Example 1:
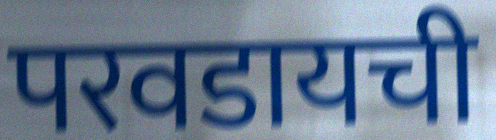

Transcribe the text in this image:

परवडायची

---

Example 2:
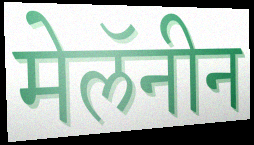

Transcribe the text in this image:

मेलॅनीन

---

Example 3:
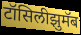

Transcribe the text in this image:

टॉसिलीझुमॅब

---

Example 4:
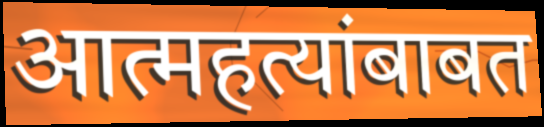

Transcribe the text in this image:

आत्महत्यांबाबत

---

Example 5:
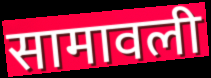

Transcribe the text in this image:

सामावली